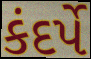
કંદર્પે